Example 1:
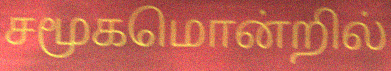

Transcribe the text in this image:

சமூகமொன்றில்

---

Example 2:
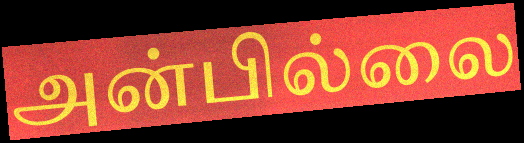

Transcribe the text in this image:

அன்பில்லை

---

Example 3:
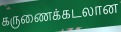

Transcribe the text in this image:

கருணைக்கடலான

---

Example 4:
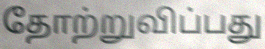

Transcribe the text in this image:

தோற்றுவிப்பது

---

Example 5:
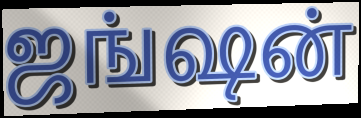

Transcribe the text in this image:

ஜங்ஷன்